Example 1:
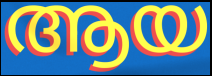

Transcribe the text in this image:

ആയ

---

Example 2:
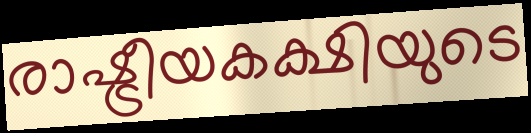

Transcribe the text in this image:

രാഷ്ട്രീയകക്ഷിയുടെ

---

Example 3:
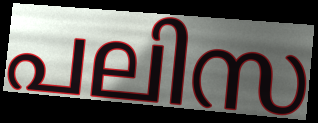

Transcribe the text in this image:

പലിസ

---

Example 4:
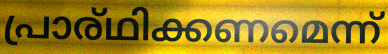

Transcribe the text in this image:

പ്രാര്ഥിക്കണമെന്ന്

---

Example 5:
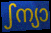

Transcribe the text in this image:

ഽന്യാ